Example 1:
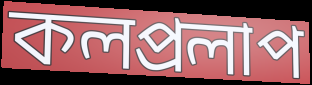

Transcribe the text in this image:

কলপ্রলাপ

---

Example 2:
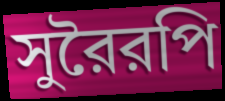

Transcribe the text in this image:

সুরৈরপি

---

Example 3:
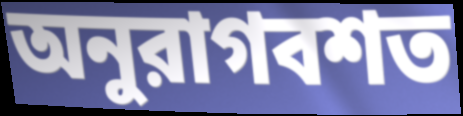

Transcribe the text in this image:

অনুরাগবশত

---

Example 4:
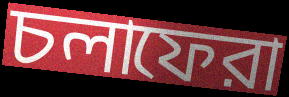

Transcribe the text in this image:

চলাফেরা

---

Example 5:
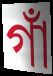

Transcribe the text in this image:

গাঁ